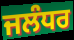
ਜਲੰਧਰ